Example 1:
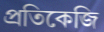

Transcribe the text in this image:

প্রতিকেজি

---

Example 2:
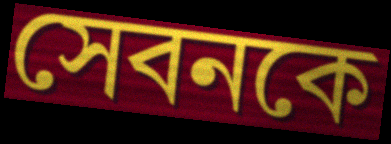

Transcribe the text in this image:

সেবনকে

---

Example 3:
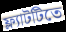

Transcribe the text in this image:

ফ্ল্যাটটিতে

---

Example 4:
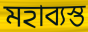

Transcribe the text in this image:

মহাব্যস্ত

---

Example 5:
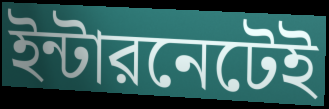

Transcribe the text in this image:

ইন্টারনেটেই